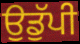
ਉਡੁੱਪੀ